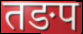
तङप